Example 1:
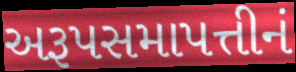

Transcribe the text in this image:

અરૂપસમાપત્તીનં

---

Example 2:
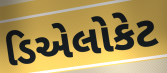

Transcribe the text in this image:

ડિએલોકેટ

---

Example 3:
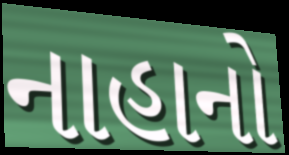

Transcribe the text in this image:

નાહાનો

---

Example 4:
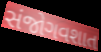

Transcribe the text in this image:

સંજોગવશાત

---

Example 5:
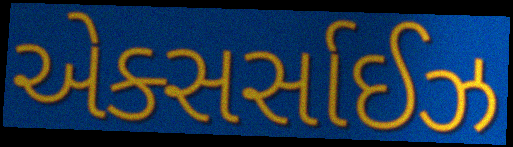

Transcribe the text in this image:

એક્સર્સાઈઝ